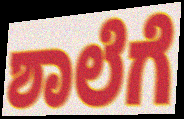
ಶಾಲೆಗೆ